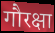
गौरक्षा